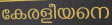
കേരളീയനെ